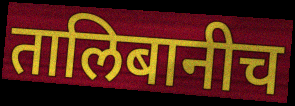
तालिबानीच